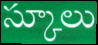
స్కూలు